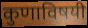
कुणाविषयी